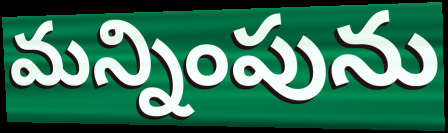
మన్నింపును